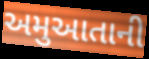
અમુઆતાની